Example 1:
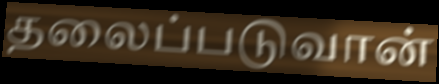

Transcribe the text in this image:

தலைப்படுவான்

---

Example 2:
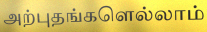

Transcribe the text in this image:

அற்புதங்களெல்லாம்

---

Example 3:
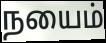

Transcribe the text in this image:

நயைம்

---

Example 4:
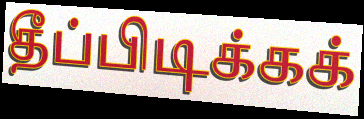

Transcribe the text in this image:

தீப்பிடிக்கக்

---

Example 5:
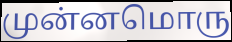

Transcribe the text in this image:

முன்னமொரு